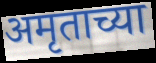
अमृताच्या